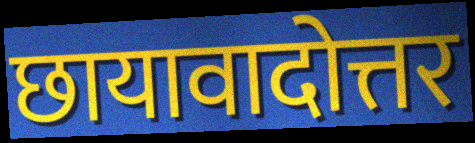
छायावादोत्तर